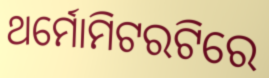
ଥର୍ମୋମିଟରଟିରେ